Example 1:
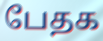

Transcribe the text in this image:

பேதக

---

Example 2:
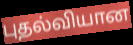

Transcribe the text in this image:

புதல்வியான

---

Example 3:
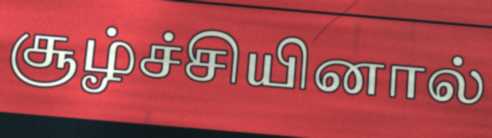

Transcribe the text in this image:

சூழ்ச்சியினால்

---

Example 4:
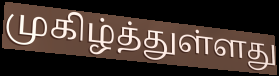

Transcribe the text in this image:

முகிழ்த்துள்ளது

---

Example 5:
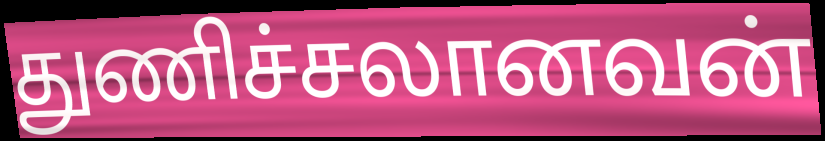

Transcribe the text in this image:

துணிச்சலானவன்